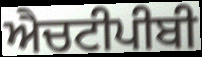
ਐਚਟੀਪੀਬੀ